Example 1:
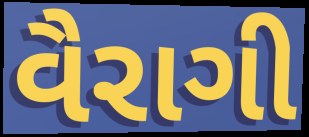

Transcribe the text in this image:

વૈરાગી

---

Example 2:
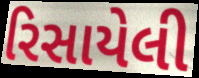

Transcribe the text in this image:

રિસાયેલી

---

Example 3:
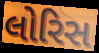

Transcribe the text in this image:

લોરિસ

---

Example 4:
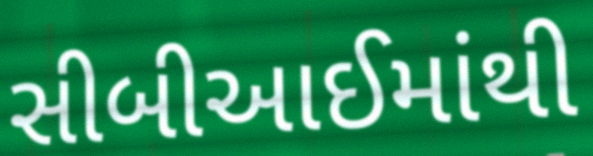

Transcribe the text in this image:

સીબીઆઈમાંથી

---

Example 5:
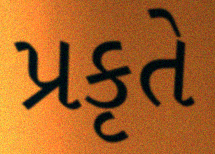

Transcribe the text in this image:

પ્રકૃતે